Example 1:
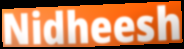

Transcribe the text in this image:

Nidheesh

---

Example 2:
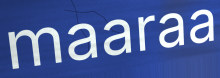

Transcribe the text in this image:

maaraa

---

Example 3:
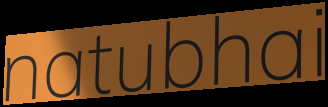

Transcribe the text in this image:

natubhai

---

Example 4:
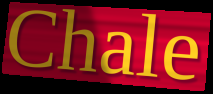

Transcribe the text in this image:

Chale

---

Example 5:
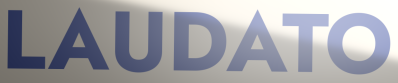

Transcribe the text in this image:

LAUDATO